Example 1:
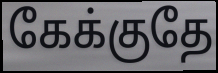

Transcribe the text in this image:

கேக்குதே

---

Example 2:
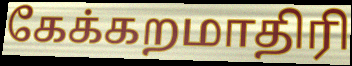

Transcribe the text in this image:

கேக்கறமாதிரி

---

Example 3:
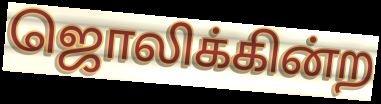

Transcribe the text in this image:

ஜொலிக்கின்ற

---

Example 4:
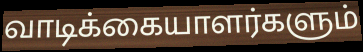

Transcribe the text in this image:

வாடிக்கையாளர்களும்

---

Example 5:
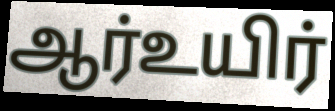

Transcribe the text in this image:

ஆர்உயிர்